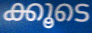
ക്കൂടെ